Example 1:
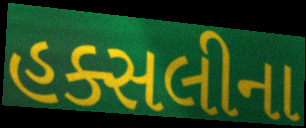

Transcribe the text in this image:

હક્સલીના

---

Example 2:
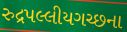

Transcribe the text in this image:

રુદ્રપલ્લીયગચ્છના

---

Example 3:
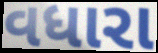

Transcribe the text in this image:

વધારા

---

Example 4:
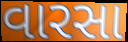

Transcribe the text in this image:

વારસા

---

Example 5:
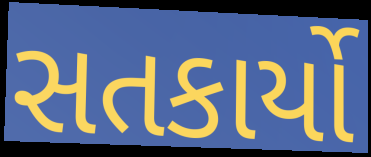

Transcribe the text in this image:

સતકાર્યો